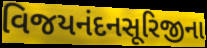
વિજયનંદનસૂરિજીના